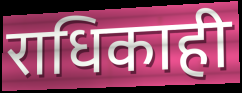
राधिकाही